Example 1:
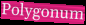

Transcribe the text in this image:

Polygonum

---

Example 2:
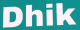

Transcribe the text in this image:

Dhik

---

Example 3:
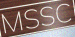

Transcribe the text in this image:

MSSC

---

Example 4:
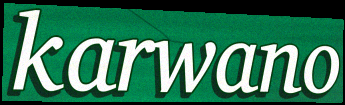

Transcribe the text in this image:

karwano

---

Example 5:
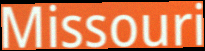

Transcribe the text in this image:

Missouri